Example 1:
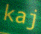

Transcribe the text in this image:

kaj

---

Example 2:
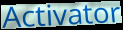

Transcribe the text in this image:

Activator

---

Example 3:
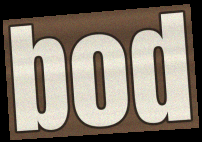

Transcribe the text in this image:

bod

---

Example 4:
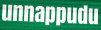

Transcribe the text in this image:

unnappudu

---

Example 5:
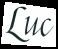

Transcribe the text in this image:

Luc